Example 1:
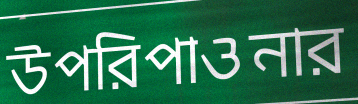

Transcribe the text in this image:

উপরিপাওনার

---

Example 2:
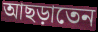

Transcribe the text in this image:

আছড়াতেন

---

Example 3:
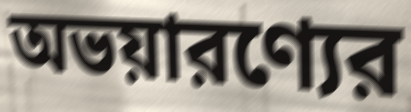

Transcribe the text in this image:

অভয়ারণ্যের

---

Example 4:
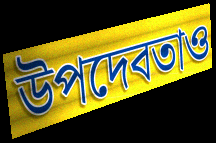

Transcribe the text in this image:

উপদেবতাও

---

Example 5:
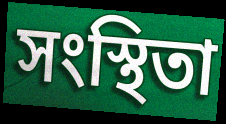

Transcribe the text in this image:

সংস্থিতা